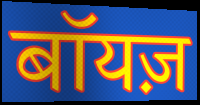
बॉयज़